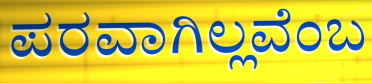
ಪರವಾಗಿಲ್ಲವೆಂಬ